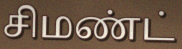
சிமண்ட்